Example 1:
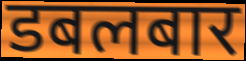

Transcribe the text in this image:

डबलबार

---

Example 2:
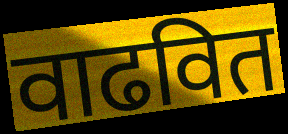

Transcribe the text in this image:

वाढवित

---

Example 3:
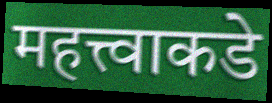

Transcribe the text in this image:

महत्त्वाकडे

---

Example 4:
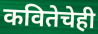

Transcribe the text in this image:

कवितेचेही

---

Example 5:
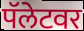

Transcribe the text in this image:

पॅलेटवर